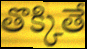
తొక్కితే